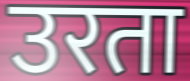
उरता